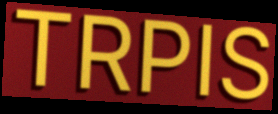
TRPIS